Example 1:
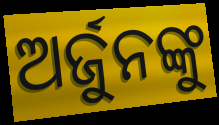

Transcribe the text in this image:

ଅର୍ଜୁନଙ୍କୁ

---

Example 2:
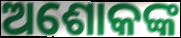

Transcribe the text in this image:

ଅଶୋକଙ୍କ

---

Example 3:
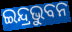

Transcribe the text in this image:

ଇନ୍ଦ୍ରଭୁବନ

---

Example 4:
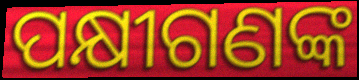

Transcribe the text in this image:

ପକ୍ଷୀଗଣଙ୍କ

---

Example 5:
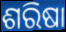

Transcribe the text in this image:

ଶରିଷା